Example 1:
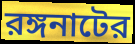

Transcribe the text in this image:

রঙ্গনাটের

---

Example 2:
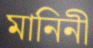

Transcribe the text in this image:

মানিনী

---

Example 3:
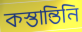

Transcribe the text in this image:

কস্তান্তিনি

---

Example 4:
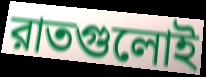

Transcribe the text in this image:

রাতগুলোই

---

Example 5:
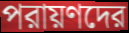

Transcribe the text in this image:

পরায়ণদের